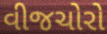
વીજચોરો